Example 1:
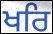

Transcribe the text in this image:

ਖਰਿ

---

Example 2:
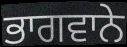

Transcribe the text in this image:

ਭਾਗਵਾਨੇ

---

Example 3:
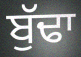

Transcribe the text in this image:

ਬੁੱਢਾ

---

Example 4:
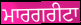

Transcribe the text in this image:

ਮਾਰਗਰੀਟਾ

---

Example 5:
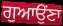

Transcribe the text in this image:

ਗੁਆਉਂਣਾ